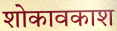
शोकावकाश